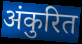
अंकुरित